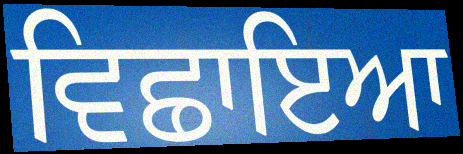
ਵਿਛਾਇਆ